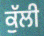
ਕੁੱਲੀ